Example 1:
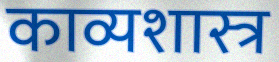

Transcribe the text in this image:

काव्यशास्त्र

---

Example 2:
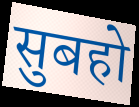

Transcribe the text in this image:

सुबहो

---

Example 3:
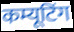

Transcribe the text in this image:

कम्यूटिंग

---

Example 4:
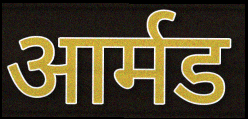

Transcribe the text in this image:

आर्मड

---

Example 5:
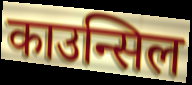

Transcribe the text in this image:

काउन्सिल